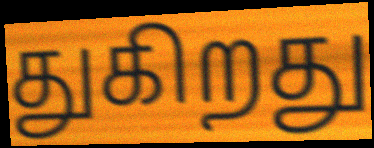
துகிறது